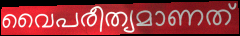
വൈപരീത്യമാണത്